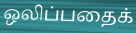
ஒலிப்பதைக்